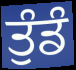
ਤੁੰਡੰ